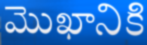
మొఖానికి